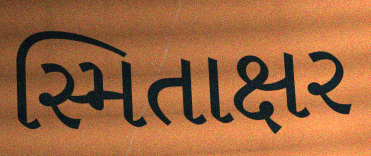
સ્મિતાક્ષર